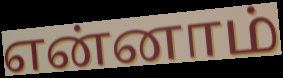
என்னாம்